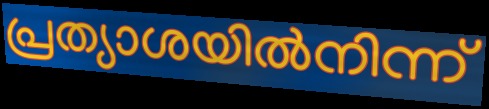
പ്രത്യാശയിൽനിന്ന്